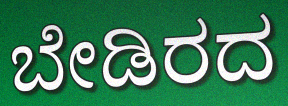
ಬೇಡಿರದ